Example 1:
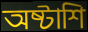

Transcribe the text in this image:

অষ্টাশি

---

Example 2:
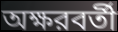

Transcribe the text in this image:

অক্ষরবর্তী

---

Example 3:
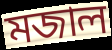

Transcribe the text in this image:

মজাল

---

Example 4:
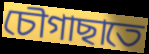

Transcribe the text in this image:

চৌগাছাতে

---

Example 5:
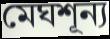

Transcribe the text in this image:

মেঘশূন্য